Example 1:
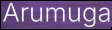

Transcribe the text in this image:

Arumuga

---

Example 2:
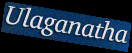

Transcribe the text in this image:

Ulaganatha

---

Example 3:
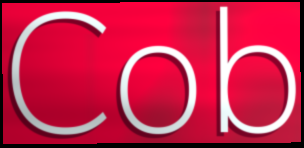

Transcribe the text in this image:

Cob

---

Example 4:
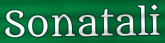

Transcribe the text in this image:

Sonatali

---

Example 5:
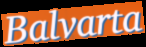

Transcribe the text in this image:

Balvarta